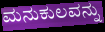
ಮನುಕುಲವನ್ನು